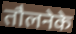
तौलनेके